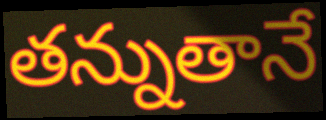
తన్నుతానే